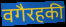
वगैरहकी